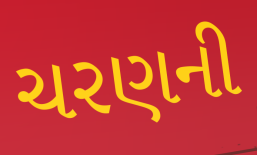
ચરણની